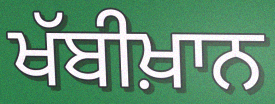
ਖੱਬੀਖ਼ਾਨ